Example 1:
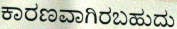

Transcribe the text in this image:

ಕಾರಣವಾಗಿರಬಹುದು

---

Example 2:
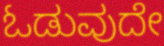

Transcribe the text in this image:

ಓಡುವುದೇ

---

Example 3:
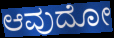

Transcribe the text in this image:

ಆವುದೋ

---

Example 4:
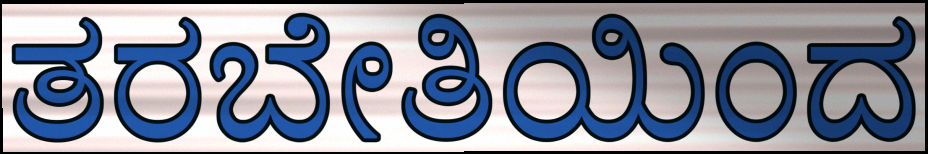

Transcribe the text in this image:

ತರಬೇತಿಯಿಂದ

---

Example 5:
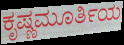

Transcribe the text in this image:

ಕೃಷ್ಣಮೂರ್ತಿಯ